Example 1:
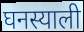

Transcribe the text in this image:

घनस्याली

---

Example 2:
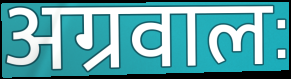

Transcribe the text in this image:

अग्रवालः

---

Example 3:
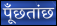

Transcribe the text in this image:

पूँछतांछ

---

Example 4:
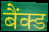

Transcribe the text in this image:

बैंक्ड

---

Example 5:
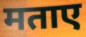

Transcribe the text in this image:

मताए